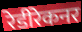
रेडीरेकनर